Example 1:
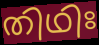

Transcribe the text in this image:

തിഥിഃ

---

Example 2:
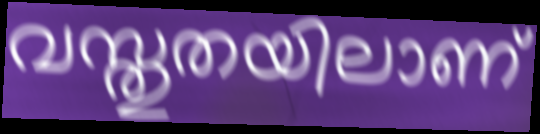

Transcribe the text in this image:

വസ്തുതയിലാണ്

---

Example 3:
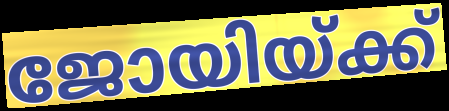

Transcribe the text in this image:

ജോയിയ്ക്ക്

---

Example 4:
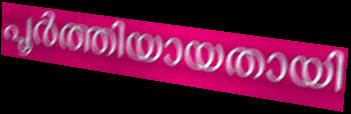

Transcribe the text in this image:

പൂർത്തിയായതായി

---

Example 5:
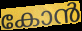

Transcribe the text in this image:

കോൻ